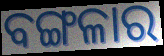
ବଙ୍ଗଳାର